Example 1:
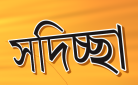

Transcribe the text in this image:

সদিচ্ছা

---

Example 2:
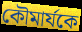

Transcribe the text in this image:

কৌমার্যকে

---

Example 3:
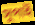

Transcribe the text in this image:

সুপাই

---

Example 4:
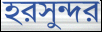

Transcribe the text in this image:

হরসুন্দর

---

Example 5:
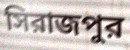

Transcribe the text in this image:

সিরাজপুর